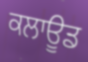
ਕਲਾਊਡ